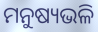
ମନୁଷ୍ୟଭଳି